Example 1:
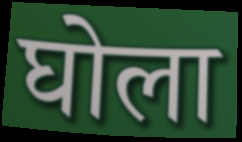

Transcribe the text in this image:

घोला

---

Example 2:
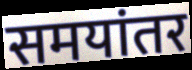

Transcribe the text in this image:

समयांतर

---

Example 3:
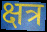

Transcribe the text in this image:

क्षत्र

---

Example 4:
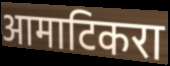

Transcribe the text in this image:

आमाटिकरा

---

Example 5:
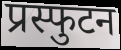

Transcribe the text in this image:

प्रस्फुटन